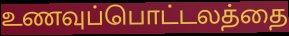
உணவுப்பொட்டலத்தை